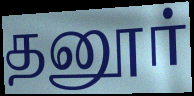
தனூர்